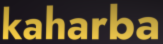
kaharba